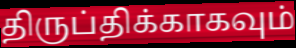
திருப்திக்காகவும்